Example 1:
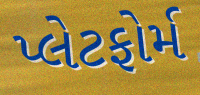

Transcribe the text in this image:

પ્લેટફોર્મ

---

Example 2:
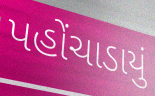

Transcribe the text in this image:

પહોંચાડાયું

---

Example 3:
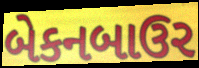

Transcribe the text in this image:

બેકનબાઉર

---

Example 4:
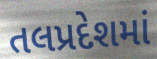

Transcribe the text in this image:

તલપ્રદેશમાં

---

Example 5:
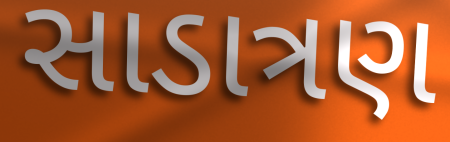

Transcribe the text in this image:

સાડાત્રણ